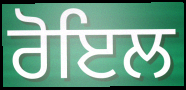
ਰੋਇਲ